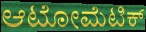
ಆಟೋಮೆಟಿಕ್